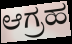
ಆಗ್ರಹ